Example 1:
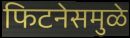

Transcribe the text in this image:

फिटनेसमुळे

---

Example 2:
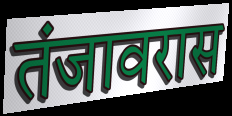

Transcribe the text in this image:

तंजावरास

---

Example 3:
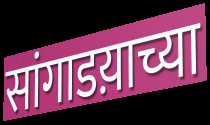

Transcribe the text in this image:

सांगाडय़ाच्या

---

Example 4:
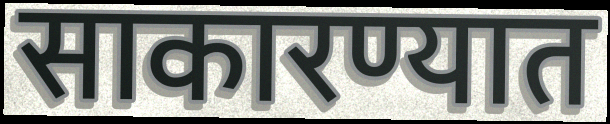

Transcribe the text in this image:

साकारण्यात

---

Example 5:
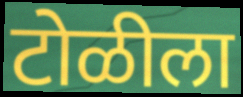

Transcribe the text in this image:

टोळीला